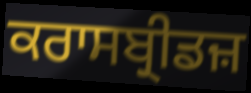
ਕਰਾਸਬ੍ਰੀਡਜ਼